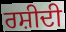
ਰਸ਼ੀਦੀ